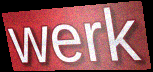
werk